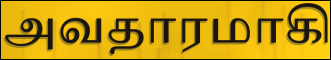
அவதாரமாகி